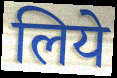
लिये